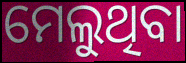
ମେଲୁଥିବା